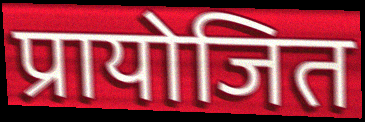
प्रायोजित